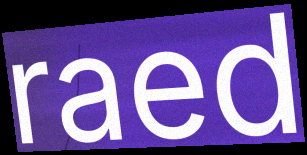
raed